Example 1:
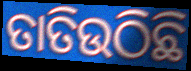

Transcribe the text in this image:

ତାତିଉଠିଛି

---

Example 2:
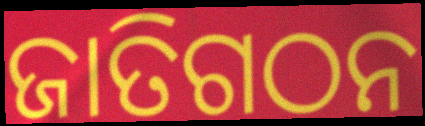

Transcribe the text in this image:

ଜାତିଗଠନ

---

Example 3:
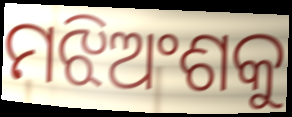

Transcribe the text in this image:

ମଝିଅଂଶକୁ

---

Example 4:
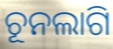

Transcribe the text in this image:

ଚୂନଲାଗି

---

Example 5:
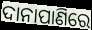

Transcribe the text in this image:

ଦାନାପାଣିରେ